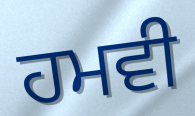
ਹਮਵੀ